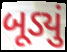
બૂડ્યું